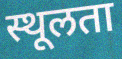
स्थूलता